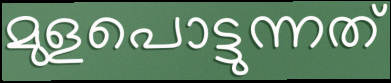
മുളപൊട്ടുന്നത്